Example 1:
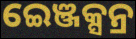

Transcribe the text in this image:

ଇେଞ୍ଜକ୍ସନ୍ର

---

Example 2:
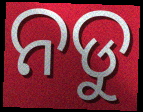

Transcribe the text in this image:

ନଡୁ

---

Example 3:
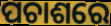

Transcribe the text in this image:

ପଚାଶରେ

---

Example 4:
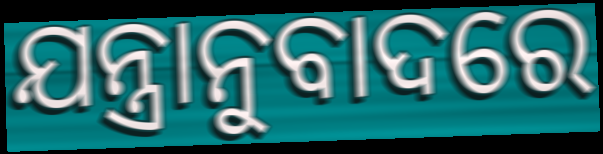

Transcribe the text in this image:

ଯନ୍ତ୍ରାନୁବାଦରେ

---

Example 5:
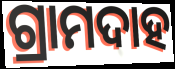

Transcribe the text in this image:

ଗ୍ରାମଦାହ